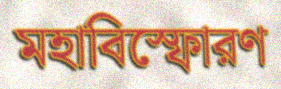
মহাবিস্ফোরণ